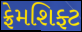
ફ્રેમશિફ્ટ